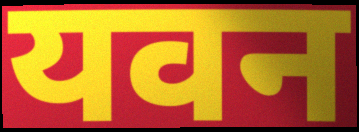
यवन